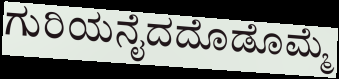
ಗುರಿಯನೈದದೊಡೊಮ್ಮೆ